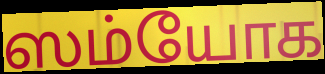
ஸம்யோக